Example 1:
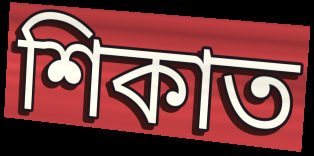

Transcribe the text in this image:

শিকাত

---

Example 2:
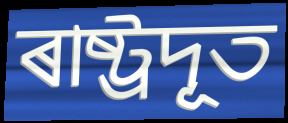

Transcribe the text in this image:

ৰাষ্ট্ৰদূত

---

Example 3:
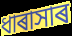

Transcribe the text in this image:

ধাৰাসাৰ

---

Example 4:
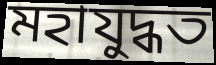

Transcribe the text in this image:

মহাযুদ্ধত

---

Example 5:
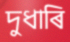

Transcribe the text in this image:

দুধাৰি